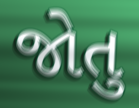
જોતુ